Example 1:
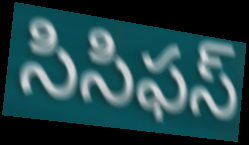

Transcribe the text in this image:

సిసిఫస్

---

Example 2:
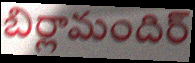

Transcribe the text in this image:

బిర్లామందిర్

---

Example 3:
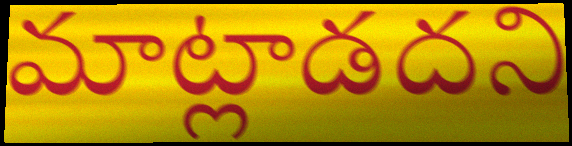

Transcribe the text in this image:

మాట్లాడదని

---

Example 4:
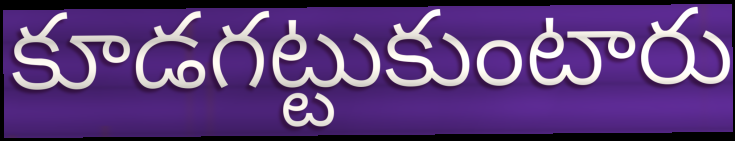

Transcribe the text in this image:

కూడగట్టుకుంటారు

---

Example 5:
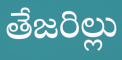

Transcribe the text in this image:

తేజరిల్లు